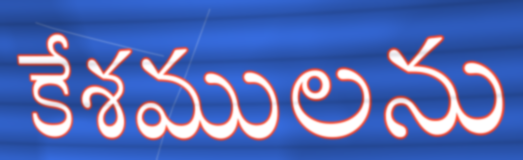
కేశములను